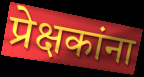
प्रेक्षकांना